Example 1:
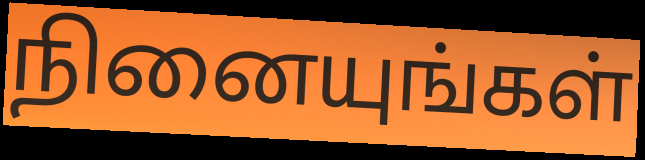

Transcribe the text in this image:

நினையுங்கள்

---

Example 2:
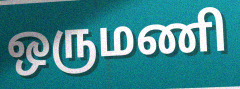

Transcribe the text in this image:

ஒருமணி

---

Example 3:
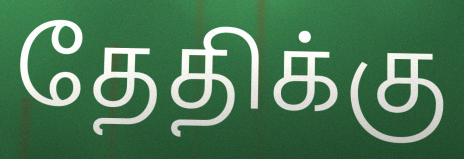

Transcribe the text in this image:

தேதிக்கு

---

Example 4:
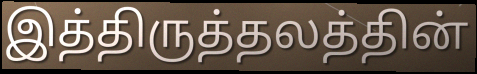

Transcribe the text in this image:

இத்திருத்தலத்தின்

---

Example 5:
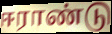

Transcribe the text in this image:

ஈராண்டு